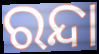
ରନ୍ଦା